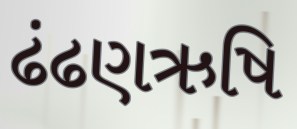
ઢંઢણઋષિ